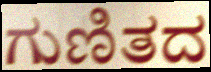
ಗುಣಿತದ